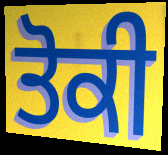
ਤੋਕੀ